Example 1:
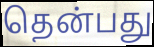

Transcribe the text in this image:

தென்பது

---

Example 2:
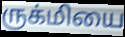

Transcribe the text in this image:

ருக்மியை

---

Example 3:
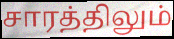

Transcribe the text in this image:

சாரத்திலும்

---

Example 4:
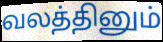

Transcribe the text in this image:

வலத்தினும்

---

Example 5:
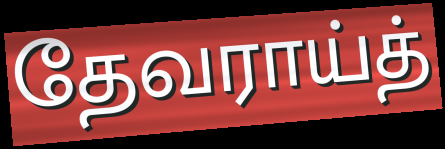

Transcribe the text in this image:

தேவராய்த்